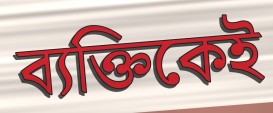
ব্যক্তিকেই